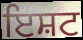
ਇਸ਼ਟ